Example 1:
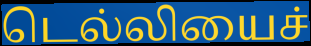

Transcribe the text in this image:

டெல்லியைச்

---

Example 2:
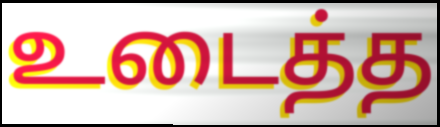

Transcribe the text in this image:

உடைத்த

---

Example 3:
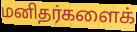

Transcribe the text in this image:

மனிதர்களைக்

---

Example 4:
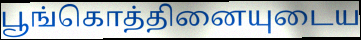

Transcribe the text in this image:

பூங்கொத்தினையுடைய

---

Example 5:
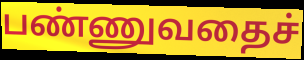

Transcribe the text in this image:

பண்ணுவதைச்